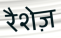
रैशेज़